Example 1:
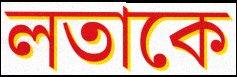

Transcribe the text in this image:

লতাকে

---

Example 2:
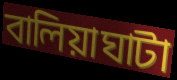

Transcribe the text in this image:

বালিয়াঘাটা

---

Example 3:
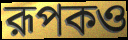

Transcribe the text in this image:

রূপকও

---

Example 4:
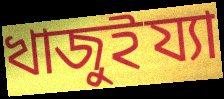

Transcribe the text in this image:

খাজুইয্যা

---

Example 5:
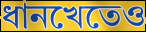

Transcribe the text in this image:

ধানখেতেও